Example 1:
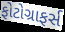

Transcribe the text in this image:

ફોટોગ્રાફર્સ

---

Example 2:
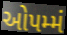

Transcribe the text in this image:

ઓપમ્મં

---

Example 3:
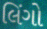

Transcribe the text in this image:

લિંગો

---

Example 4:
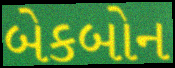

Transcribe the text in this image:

બેકબોન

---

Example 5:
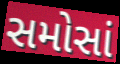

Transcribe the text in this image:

સમોસાં